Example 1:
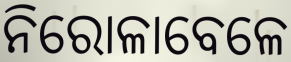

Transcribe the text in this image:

ନିରୋଳାବେଳେ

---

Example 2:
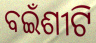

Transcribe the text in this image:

ବଇଁଶୀଟି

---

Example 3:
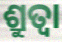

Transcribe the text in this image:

ଶ୍ରୁତ୍ଵା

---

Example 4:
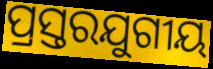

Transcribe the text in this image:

ପ୍ରସ୍ତରଯୁଗୀୟ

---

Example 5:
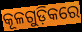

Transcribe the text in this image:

କୂଳଗୁଡ଼ିକରେ